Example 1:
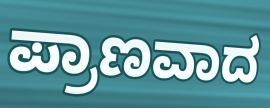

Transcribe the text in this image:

ಪ್ರಾಣವಾದ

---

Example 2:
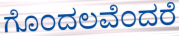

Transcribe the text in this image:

ಗೊಂದಲವೆಂದರೆ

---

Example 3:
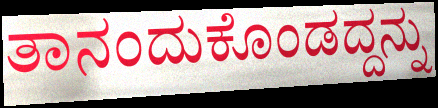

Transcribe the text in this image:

ತಾನಂದುಕೊಂಡದ್ದನ್ನು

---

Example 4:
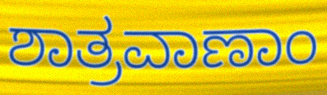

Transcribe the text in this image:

ಶಾತ್ರವಾಣಾಂ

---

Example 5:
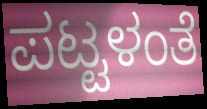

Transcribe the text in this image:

ಪಟ್ಟಳಂತೆ